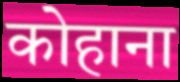
कोहाना